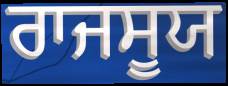
ਰਾਜਸੂਯ